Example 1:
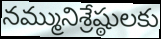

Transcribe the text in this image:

నమ్మునిశ్రేష్ఠులకు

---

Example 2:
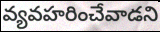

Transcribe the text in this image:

వ్యవహరించేవాడని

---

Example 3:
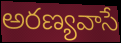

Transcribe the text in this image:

అరణ్యవాసే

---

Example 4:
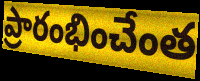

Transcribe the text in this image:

ప్రారంభించేంత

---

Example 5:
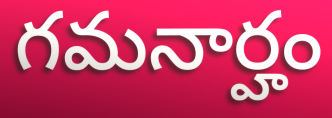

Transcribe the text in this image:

గమనార్హం